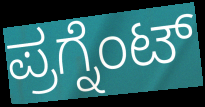
ಪ್ರಗ್ನೆಂಟ್